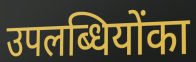
उपलब्धियोंका